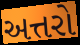
અત્તરો